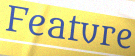
Feature